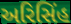
અરિસિંહ